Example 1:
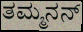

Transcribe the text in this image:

ತಮ್ಮನನ್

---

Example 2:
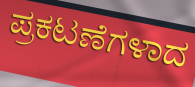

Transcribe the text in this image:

ಪ್ರಕಟಣೆಗಳಾದ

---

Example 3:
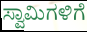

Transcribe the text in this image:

ಸ್ವಾಮಿಗಳಿಗೆ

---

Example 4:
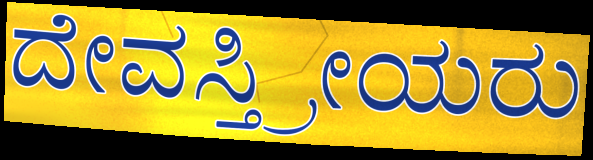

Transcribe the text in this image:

ದೇವಸ್ತ್ರೀಯರು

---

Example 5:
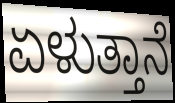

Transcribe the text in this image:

ಏಳುತ್ತಾನೆ